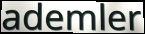
ademler